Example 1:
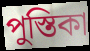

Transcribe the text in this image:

পুস্তিকা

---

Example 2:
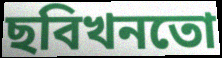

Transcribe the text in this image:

ছবিখনতো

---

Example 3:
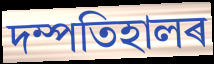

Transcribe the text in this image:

দম্পতিহালৰ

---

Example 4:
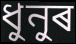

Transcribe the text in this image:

ধুনুৰ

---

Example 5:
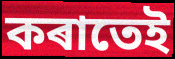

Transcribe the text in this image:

কৰাতেই